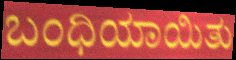
ಬಂಧಿಯಾಯಿತು